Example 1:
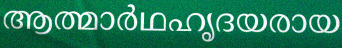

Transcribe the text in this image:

ആത്മാർഥഹൃദയരായ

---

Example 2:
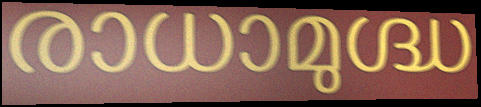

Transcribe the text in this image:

രാധാമുഗ്ദ്ധ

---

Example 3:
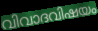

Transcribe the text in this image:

വിവാദവിഷയം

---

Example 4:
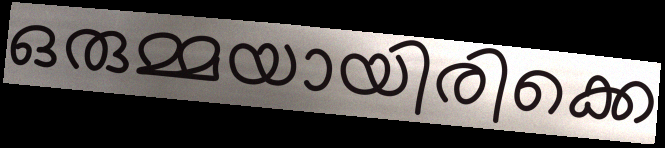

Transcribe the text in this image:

ഒരുമ്മയായിരിക്കെ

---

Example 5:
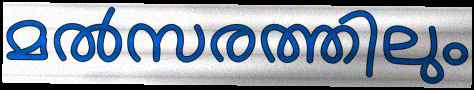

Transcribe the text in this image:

മൽസരത്തിലും